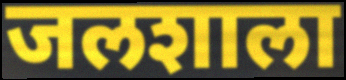
जलशाला